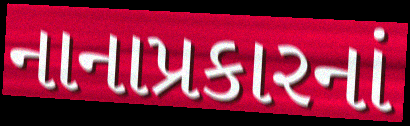
નાનાપ્રકારનાં